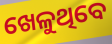
ଖେଳୁଥିବେ